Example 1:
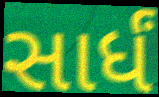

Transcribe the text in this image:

સાર્ધં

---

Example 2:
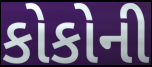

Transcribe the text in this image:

કોકોની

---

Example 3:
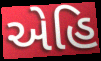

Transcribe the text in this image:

એહિ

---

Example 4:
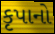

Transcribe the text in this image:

કૃપાનો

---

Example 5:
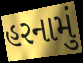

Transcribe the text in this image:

હરનામું